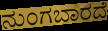
ನುಂಗಬಾರದೆ